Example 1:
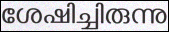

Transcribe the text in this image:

ശേഷിച്ചിരുന്നു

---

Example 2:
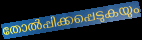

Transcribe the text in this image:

തോൽപ്പിക്കപ്പെടുകയും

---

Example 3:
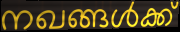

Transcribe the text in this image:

നഖങ്ങൾക്ക്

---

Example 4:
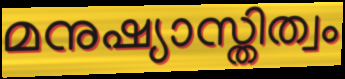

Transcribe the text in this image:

മനുഷ്യാസ്തിത്വം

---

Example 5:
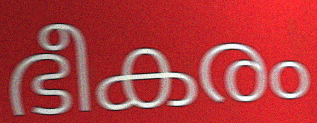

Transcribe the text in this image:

ഭീകരം